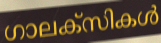
ഗാലക്സികൾ